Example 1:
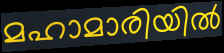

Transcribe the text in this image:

മഹാമാരിയിൽ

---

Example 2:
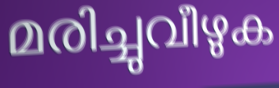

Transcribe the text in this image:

മരിച്ചുവീഴുക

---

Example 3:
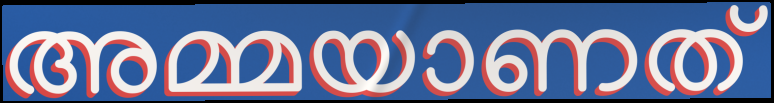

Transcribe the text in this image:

അമ്മയാണത്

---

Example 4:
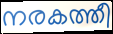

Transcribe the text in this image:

നരകത്തീ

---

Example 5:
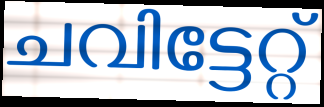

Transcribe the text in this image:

ചവിട്ടേറ്റ്